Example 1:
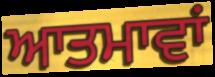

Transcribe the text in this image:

ਆਤਮਾਵਾਂ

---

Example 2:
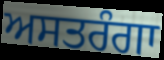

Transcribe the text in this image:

ਅਸਤਰੰਗਾ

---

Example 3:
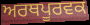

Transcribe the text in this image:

ਅਰਥਪੂਰਵਕ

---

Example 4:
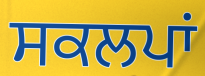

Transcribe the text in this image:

ਸਕਲਪਾਂ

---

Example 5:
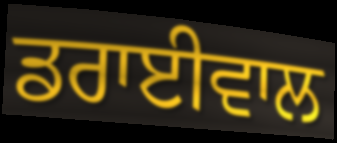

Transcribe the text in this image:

ਡਰਾਈਵਾਲ